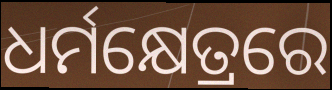
ଧର୍ମକ୍ଷେତ୍ରରେ